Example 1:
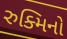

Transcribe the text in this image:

રુક્મિનો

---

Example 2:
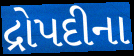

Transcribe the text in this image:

દ્રોપદીના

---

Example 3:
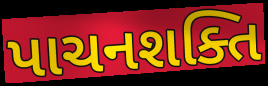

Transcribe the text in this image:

પાચનશક્તિ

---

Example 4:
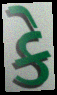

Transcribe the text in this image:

કે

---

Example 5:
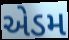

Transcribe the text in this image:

એડમ